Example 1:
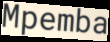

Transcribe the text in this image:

Mpemba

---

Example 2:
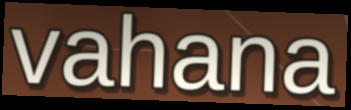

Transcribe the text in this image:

vahana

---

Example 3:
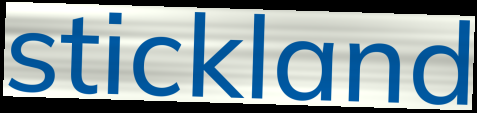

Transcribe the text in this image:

stickland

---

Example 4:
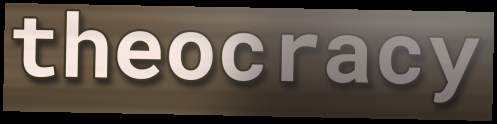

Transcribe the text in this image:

theocracy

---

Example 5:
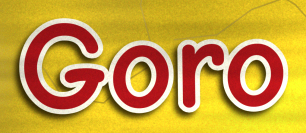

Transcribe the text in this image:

Goro